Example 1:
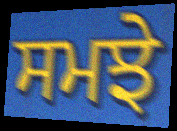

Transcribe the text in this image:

ਸਮਝੇ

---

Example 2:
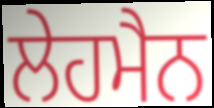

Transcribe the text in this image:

ਲੇਹਮੈਨ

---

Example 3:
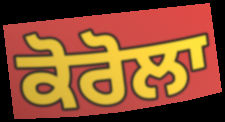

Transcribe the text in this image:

ਕੋਰੋਲਾ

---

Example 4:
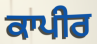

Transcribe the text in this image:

ਕਾਪੀਰ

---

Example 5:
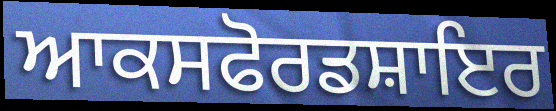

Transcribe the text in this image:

ਆਕਸਫੋਰਡਸ਼ਾਇਰ